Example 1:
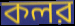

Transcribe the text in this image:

কলর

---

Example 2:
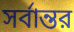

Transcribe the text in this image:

সর্বান্তর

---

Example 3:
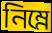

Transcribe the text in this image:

নিম্নে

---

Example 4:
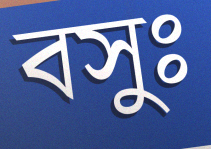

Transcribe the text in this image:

বসুঃ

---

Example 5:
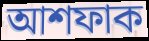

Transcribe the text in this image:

আশফাক